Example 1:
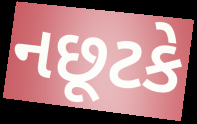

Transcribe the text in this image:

નછૂટકે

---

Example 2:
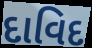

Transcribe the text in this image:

દાવિદ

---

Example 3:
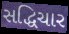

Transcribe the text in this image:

સદ્ધિચાર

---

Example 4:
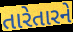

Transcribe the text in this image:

તારેતારને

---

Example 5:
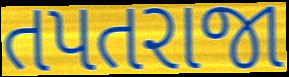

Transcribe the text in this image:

તપતરાજા